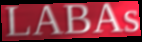
LABAs